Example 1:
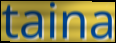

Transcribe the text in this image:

taina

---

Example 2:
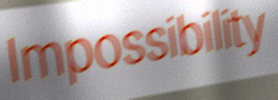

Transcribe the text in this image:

Impossibility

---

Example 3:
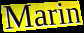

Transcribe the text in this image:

Marin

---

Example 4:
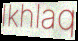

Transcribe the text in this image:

Ikhlaq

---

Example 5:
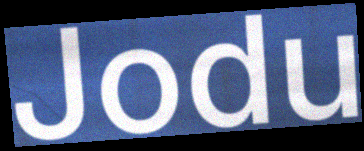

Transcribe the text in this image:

Jodu